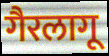
गैरलागू